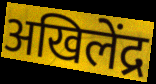
अखिलेंद्र